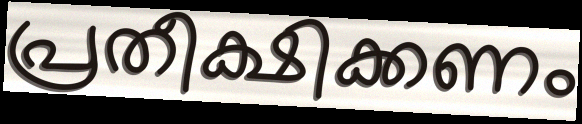
പ്രതീക്ഷിക്കണം